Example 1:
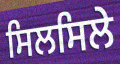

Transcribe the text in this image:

ਸਿਲਸਿਲੇ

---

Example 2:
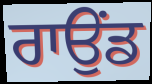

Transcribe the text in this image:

ਰਾਉਂਡ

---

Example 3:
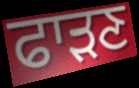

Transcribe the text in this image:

ਫਾੜਣ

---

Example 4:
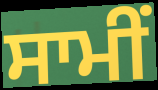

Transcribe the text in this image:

ਸਾਮੀਂ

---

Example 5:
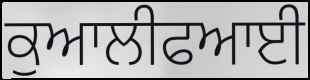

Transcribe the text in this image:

ਕੁਆਲੀਫਆਈ